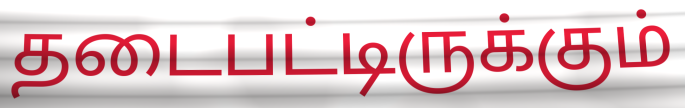
தடைபட்டிருக்கும்